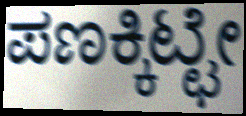
ಪಣಕ್ಕಿಟ್ಟೇ